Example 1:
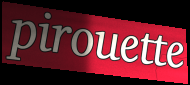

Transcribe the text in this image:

pirouette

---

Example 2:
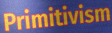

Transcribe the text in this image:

Primitivism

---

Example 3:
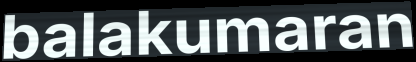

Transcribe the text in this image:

balakumaran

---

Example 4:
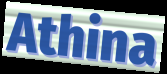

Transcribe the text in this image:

Athina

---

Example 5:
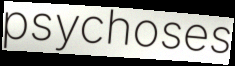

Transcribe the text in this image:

psychoses